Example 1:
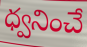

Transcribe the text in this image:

ధ్వనించే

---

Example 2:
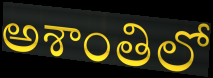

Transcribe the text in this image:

అశాంతిలో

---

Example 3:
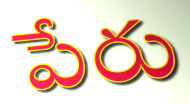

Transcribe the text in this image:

పేరు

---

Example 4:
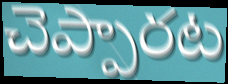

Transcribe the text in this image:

చెప్పారట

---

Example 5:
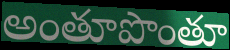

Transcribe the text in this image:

అంతూపొంతూ